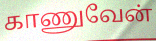
காணுவேன்